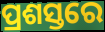
ପ୍ରଶସ୍ତରେ